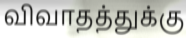
விவாதத்துக்கு